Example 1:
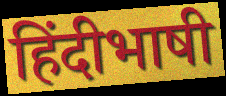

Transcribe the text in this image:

हिंदीभाषी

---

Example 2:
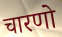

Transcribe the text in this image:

चारणो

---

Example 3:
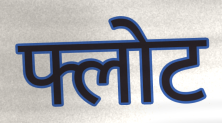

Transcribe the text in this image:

फ्लोट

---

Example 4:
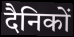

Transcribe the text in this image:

दैनिकों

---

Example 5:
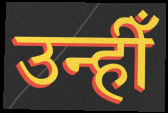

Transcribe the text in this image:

उन्हीँ